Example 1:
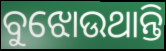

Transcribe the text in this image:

ବୁଝୋଉଥାନ୍ତି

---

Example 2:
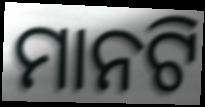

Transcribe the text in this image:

ମାନଟି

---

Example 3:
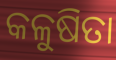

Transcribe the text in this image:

କଳୁଷିତା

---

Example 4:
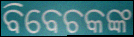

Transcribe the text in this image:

ବିବେଚକଙ୍କ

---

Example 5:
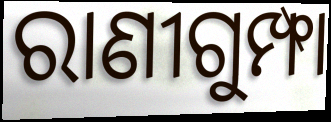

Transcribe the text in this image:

ରାଣୀଗୁମ୍ଫା